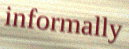
informally